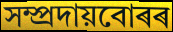
সম্প্ৰদায়বোৰৰ